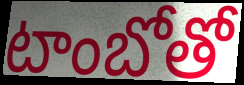
టాంబోతో